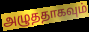
அழுததாகவும்